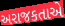
અરાજકતાએ